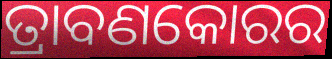
ତ୍ରାବଣକୋରର